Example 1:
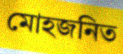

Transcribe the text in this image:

মোহজনিত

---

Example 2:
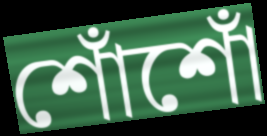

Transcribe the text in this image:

শোঁশোঁ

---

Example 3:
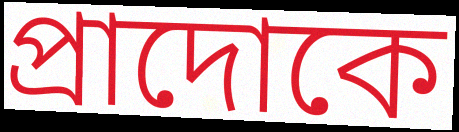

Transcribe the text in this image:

প্রাদোকে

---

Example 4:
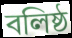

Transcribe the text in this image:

বলিষ্ঠ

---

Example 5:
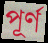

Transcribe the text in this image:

পূর্ণ